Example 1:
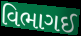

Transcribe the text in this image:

વિભાગઈ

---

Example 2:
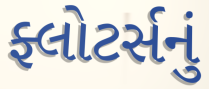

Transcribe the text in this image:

ફ્લોટર્સનું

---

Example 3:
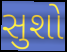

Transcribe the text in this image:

સુશો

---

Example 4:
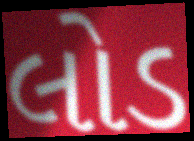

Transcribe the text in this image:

લોડ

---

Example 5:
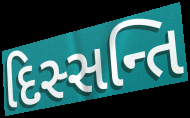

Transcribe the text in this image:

દિસ્સન્તિ